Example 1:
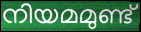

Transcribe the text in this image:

നിയമമുണ്ട്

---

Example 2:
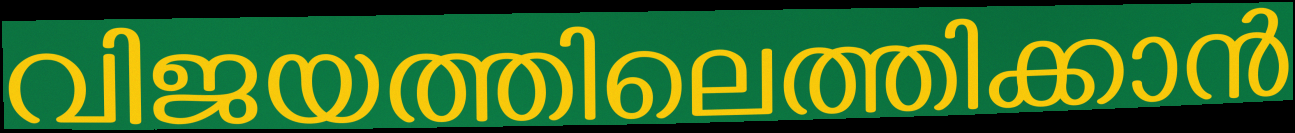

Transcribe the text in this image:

വിജയത്തിലെത്തിക്കാൻ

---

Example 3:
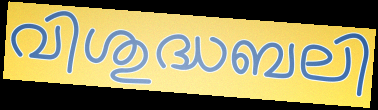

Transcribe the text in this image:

വിശുദ്ധബലി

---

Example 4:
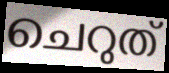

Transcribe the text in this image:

ചെറുത്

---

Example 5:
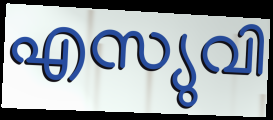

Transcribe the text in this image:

എസ്യുവി